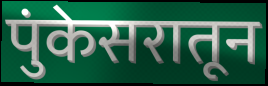
पुंकेसरातून